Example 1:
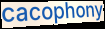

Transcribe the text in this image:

cacophony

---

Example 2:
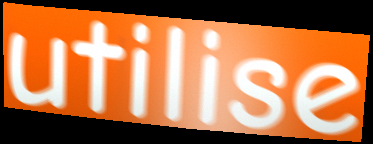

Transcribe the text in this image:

utilise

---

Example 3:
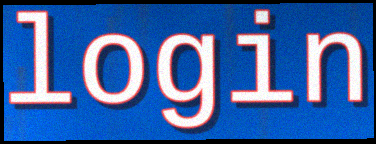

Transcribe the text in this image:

login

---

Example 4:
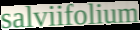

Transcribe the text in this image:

salviifolium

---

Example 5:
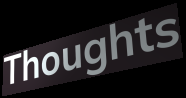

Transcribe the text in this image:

Thoughts